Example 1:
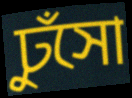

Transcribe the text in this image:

ঢুঁসো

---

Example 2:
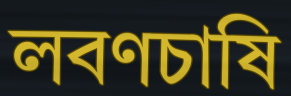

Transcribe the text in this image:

লবণচাষি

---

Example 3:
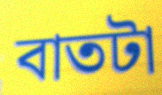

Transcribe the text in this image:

বাতটা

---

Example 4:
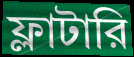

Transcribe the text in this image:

ফ্লাটারি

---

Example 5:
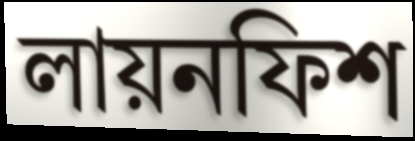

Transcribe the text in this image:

লায়নফিশ